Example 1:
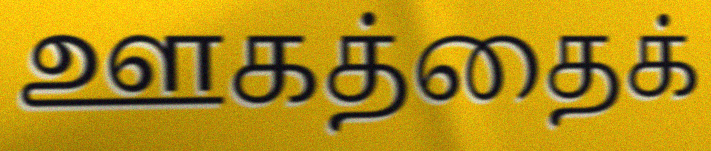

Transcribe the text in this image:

ஊகத்தைக்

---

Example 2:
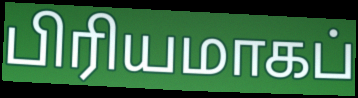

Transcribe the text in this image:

பிரியமாகப்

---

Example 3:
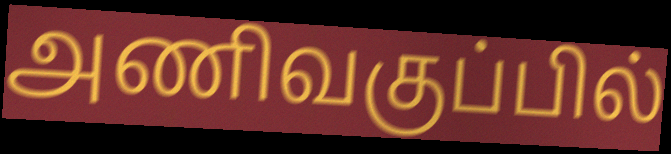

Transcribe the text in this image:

அணிவகுப்பில்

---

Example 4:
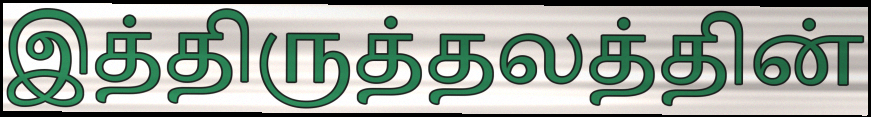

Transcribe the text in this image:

இத்திருத்தலத்தின்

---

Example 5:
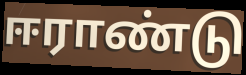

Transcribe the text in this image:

ஈராண்டு